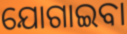
ଯୋଗାଇବା